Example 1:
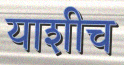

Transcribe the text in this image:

याशीच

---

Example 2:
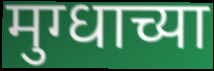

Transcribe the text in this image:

मुग्धाच्या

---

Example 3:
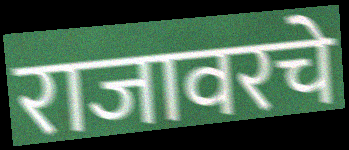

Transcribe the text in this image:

राजावरचे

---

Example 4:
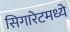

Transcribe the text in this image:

सिगारेटमध्ये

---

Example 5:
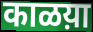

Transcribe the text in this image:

काळय़ा